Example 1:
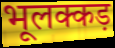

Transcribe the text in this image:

भूलक्कड़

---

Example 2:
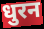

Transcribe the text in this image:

धुरन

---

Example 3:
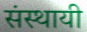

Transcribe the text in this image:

संस्थायी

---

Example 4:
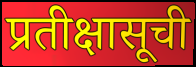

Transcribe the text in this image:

प्रतीक्षासूची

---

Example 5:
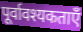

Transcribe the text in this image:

पूर्वावश्यकताएँ